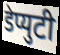
डेप्युटी